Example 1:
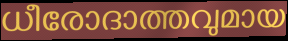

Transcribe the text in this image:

ധീരോദാത്തവുമായ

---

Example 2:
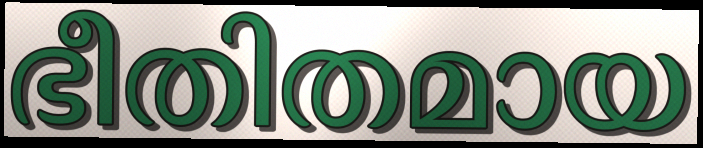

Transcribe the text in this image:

ഭീതിതമായ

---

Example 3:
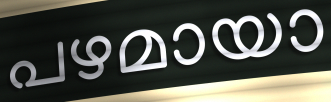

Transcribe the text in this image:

പഴമായാ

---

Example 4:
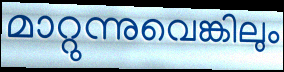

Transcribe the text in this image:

മാറ്റുന്നുവെങ്കിലും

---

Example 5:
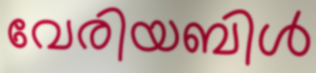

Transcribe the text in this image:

വേരിയബിൾ